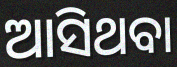
ଆସିଥବା